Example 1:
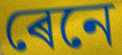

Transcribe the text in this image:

ৰেনে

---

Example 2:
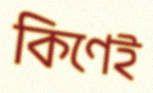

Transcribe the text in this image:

কিণেই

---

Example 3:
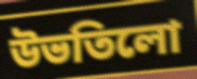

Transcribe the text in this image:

উভতিলো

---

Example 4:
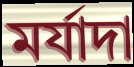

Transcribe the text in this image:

মৰ্যাদা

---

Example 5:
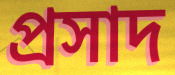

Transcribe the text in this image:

প্ৰসাদ